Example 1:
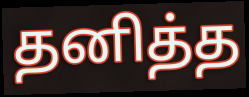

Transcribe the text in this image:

தனித்த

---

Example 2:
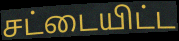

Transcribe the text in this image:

சட்டையிட்ட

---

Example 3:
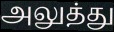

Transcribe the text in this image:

அலுத்து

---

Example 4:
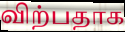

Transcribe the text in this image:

விற்பதாக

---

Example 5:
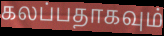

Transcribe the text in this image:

கலப்பதாகவும்